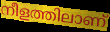
നീളത്തിലാണ്